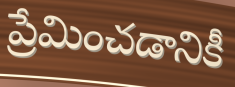
ప్రేమించడానికీ